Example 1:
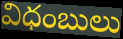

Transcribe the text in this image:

విధంబులు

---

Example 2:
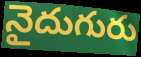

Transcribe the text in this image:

నైదుగురు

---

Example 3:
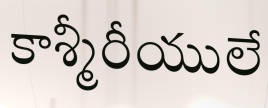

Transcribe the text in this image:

కాశ్మీరీయులే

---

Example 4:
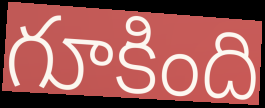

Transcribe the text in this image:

గూకింది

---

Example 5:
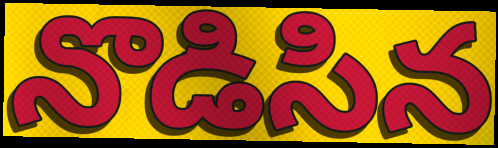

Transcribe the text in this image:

నొడిసిన